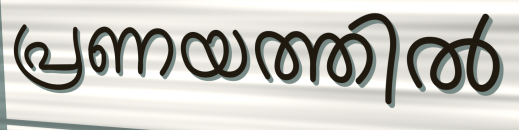
പ്രണയത്തിൽ